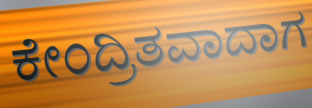
ಕೇಂದ್ರಿತವಾದಾಗ